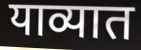
याव्यात